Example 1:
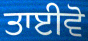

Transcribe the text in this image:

ਤਾਈਵੋ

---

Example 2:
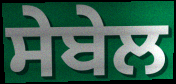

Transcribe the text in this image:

ਸੇਬੇਲ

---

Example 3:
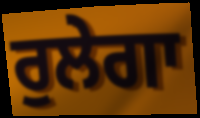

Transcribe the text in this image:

ਰੁਲੇਗਾ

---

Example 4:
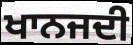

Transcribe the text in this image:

ਖਾਨਜਦੀ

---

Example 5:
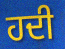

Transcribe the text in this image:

ਹਦੀ